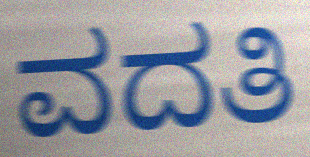
ವದತಿ